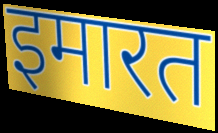
इमारत